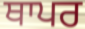
ਥਾਪਰ